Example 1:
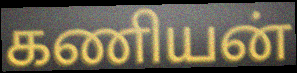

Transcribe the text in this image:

கணியன்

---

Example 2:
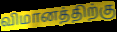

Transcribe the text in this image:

விமானத்திற்கு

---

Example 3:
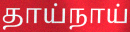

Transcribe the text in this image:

தாய்நாய்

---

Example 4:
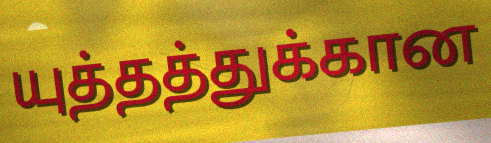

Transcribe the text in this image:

யுத்தத்துக்கான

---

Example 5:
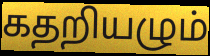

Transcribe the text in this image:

கதறியழும்